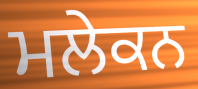
ਮਲੇਕਨ